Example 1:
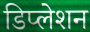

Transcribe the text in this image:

डिप्लेशन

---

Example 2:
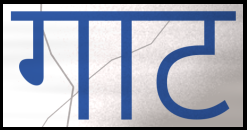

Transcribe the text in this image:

गाट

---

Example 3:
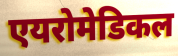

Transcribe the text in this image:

एयरोमेडिकल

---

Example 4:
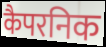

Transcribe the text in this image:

कैपरनिक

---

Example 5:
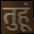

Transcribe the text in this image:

तुहूं